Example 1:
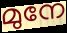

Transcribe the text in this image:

മുനേ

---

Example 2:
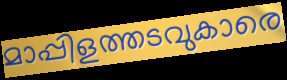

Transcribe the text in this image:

മാപ്പിളത്തടവുകാരെ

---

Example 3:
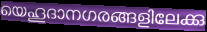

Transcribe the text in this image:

യെഹൂദാനഗരങ്ങളിലേക്കു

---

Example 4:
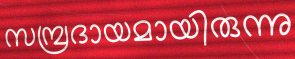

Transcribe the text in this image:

സമ്പ്രദായമായിരുന്നു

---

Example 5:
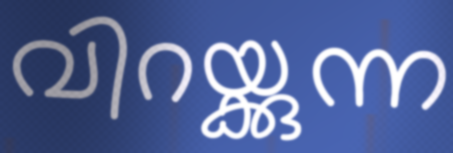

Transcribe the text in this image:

വിറയ്ക്കുന്ന